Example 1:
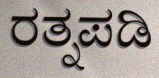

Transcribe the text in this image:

ರತ್ನಪಡಿ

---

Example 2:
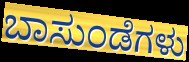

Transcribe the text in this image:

ಬಾಸುಂಡೆಗಳು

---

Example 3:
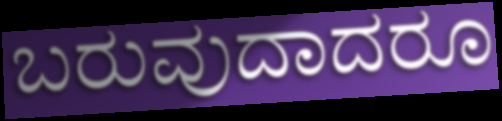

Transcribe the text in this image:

ಬರುವುದಾದರೂ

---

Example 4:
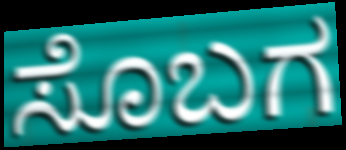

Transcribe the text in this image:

ಸೊಬಗ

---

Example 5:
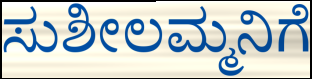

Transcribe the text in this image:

ಸುಶೀಲಮ್ಮನಿಗೆ